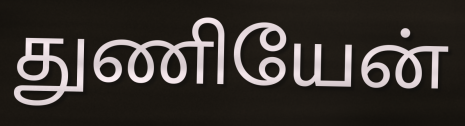
துணியேன்